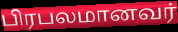
பிரபலமானவர்